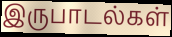
இருபாடல்கள்